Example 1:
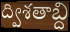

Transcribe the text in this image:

ద్విశతాబ్ది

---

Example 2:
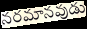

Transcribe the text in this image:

నరమానవుడు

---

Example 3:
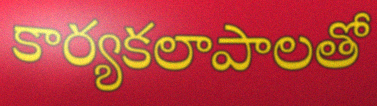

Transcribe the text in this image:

కార్యకలాపాలతో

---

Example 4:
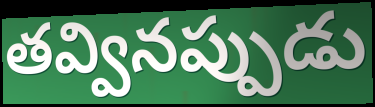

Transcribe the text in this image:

తవ్వినప్పుడు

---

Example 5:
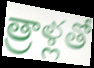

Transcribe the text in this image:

త్రాళ్లతో